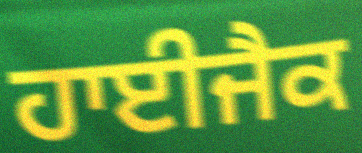
ਹਾਈਜੈਕ